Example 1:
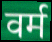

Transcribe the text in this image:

वर्म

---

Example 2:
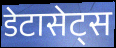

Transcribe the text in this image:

डेटासेट्स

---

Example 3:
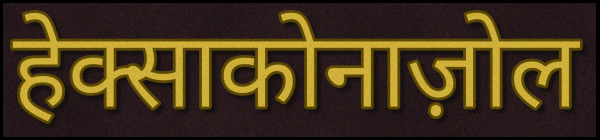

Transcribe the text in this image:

हेक्साकोनाज़ोल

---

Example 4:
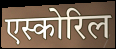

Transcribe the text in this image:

एस्कोरिल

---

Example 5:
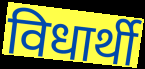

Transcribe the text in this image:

विधार्थी